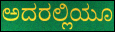
ಅದರಲ್ಲಿಯೂ